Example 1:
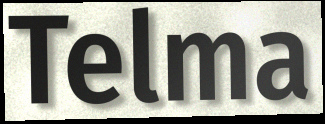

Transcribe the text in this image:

Telma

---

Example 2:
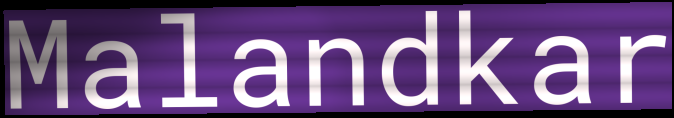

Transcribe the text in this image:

Malandkar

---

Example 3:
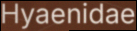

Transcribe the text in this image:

Hyaenidae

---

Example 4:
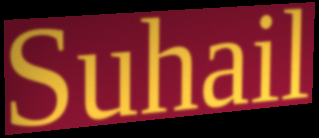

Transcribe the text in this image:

Suhail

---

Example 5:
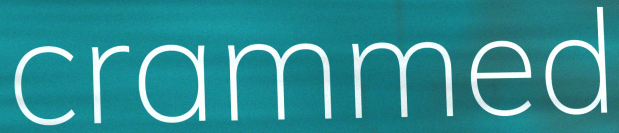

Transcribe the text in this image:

crammed